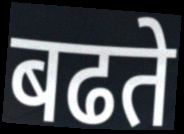
बढते